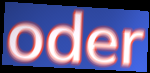
oder